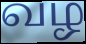
வழ